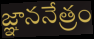
జ్ఞాననేత్రం